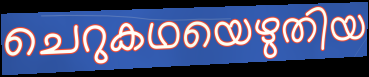
ചെറുകഥയെഴുതിയ